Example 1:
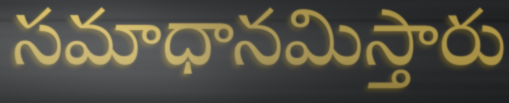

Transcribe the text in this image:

సమాధానమిస్తారు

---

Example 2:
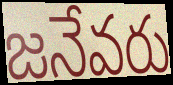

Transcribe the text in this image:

జనేవరు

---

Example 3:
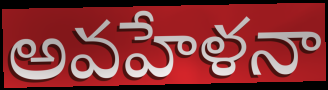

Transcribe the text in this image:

అవహేళనా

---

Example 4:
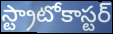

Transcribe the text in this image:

స్ట్రాటోకాస్టర్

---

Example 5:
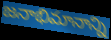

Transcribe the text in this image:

జనాభిమానాన్ని